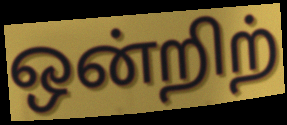
ஒன்றிற்